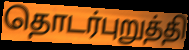
தொடர்புறுத்தி